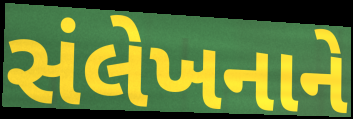
સંલેખનાને